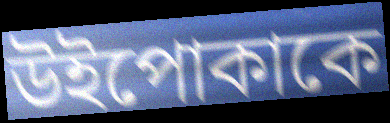
উইপোকাকে